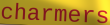
charmers